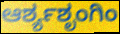
ಆರ್ಶ್ಯಶೃಂಗಿಂ